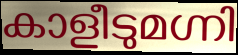
കാളീടുമഗ്നി